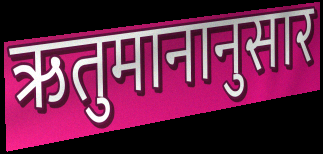
ऋतुमानानुसार